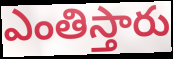
ఎంతిస్తారు